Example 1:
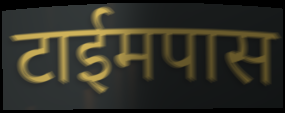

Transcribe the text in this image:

टाईमपास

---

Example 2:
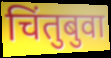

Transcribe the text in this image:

चिंतुबुवा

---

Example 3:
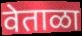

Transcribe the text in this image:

वेताळा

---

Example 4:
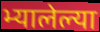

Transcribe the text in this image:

भ्यालेल्या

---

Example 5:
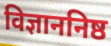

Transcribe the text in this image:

विज्ञाननिष्ठ